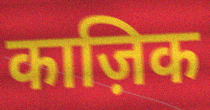
काज़िक